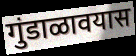
गुंडाळावयास